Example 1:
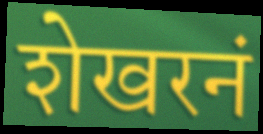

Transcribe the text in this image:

शेखरनं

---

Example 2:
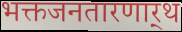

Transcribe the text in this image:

भक्तजनतारणार्थ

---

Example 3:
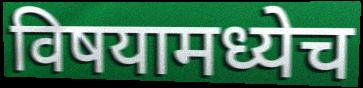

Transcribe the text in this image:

विषयामध्येच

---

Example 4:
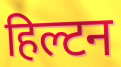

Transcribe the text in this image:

हिल्टन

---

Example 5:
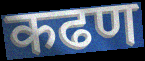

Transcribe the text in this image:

कढण